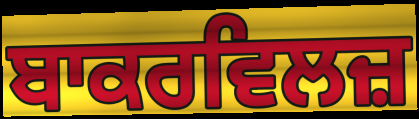
ਬਾਕਰਵਿਲਜ਼